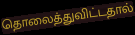
தொலைத்துவிட்டதால்